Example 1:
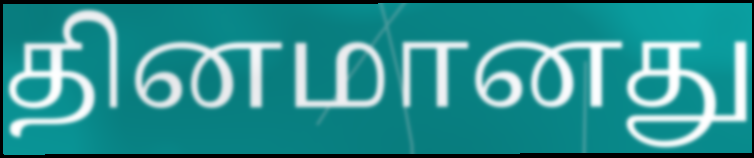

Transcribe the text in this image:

தினமானது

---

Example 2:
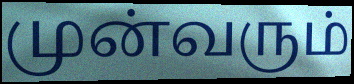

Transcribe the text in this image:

முன்வரும்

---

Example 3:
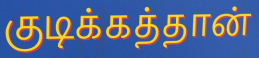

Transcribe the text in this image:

குடிக்கத்தான்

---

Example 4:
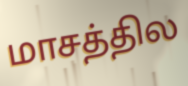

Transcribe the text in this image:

மாசத்தில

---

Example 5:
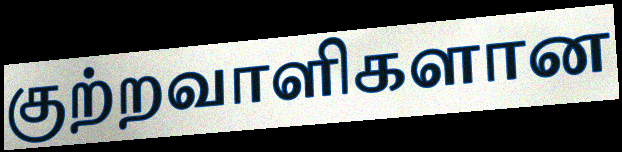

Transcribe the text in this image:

குற்றவாளிகளான